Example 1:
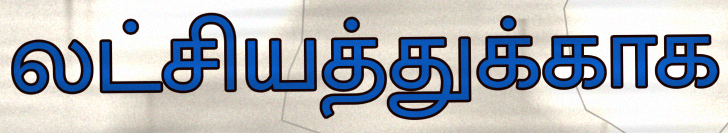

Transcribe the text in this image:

லட்சியத்துக்காக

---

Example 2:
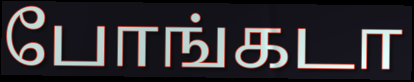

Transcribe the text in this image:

போங்கடா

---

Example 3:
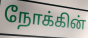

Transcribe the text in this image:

நோக்கின்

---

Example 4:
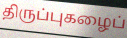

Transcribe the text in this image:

திருப்புகழைப்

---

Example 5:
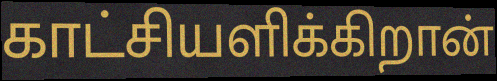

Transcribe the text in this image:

காட்சியளிக்கிறான்